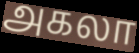
அகலா